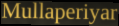
Mullaperiyar